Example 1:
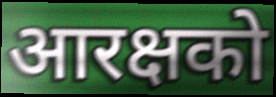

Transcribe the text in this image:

आरक्षको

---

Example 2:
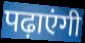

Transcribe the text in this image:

पढ़ाएंगी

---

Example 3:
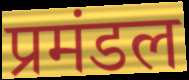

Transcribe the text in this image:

प्रमंडल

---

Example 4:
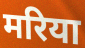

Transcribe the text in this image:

मरिया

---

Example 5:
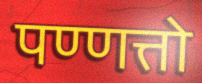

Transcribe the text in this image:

पण्णत्तो